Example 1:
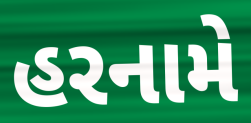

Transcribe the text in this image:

હરનામે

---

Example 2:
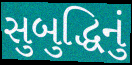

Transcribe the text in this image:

સુબુદ્ધિનું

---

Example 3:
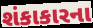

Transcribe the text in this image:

શંકાકારના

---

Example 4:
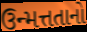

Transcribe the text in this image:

ઉન્મત્તતાનો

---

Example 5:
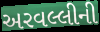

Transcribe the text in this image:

અરવલ્લીની